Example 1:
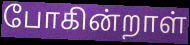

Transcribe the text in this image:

போகின்றாள்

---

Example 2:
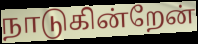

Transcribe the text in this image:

நாடுகின்றேன்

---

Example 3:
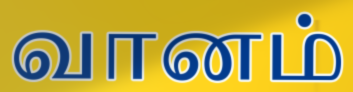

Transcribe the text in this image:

வானம்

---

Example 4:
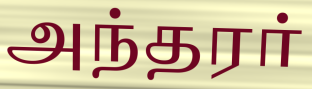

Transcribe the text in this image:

அந்தரர்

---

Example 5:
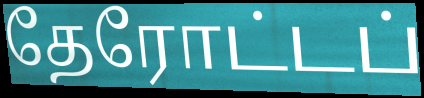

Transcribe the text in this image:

தேரோட்டப்